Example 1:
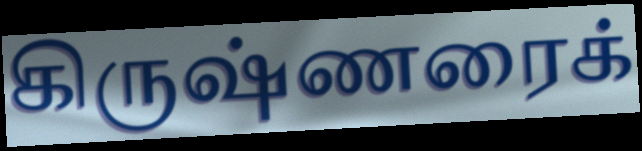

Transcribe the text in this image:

கிருஷ்ணரைக்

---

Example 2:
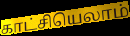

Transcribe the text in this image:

காட்சியெலாம்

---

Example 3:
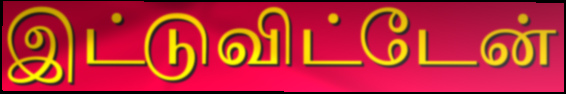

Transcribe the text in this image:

இட்டுவிட்டேன்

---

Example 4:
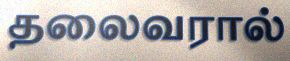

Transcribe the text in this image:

தலைவரால்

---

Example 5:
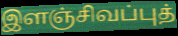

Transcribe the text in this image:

இளஞ்சிவப்புத்